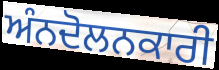
ਅੰਨਦੋਲਨਕਾਰੀ